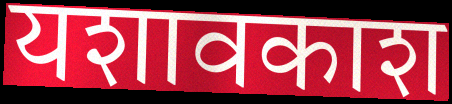
यशावकाश